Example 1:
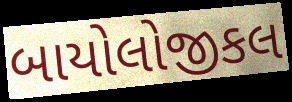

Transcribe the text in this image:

બાયોલોજીકલ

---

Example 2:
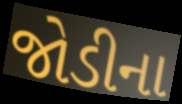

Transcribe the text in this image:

જોડીના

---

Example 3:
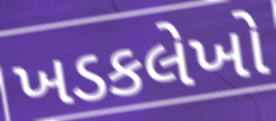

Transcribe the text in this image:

ખડકલેખો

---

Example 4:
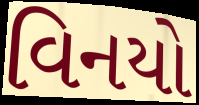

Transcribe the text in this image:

વિનયો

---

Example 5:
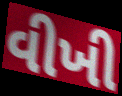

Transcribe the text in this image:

વીખી